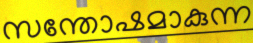
സന്തോഷമാകുന്ന